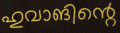
ഹുവാങിന്റെ